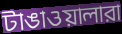
টাঙাওয়ালারা